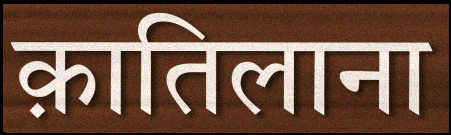
क़ातिलाना